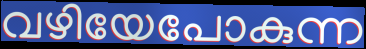
വഴിയേപോകുന്ന